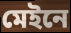
মেইনে